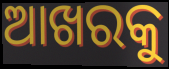
ଆଖରକୁ